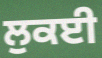
ਲੁਕਈ